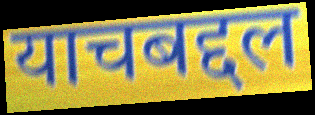
याचबद्दल